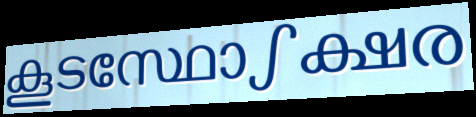
കൂടസ്ഥോഽക്ഷര